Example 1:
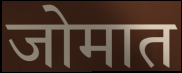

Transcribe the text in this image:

जोमात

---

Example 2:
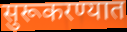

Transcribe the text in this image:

सुरूकरण्यात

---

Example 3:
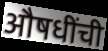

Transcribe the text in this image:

औषधींची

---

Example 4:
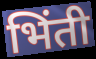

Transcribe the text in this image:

भिंती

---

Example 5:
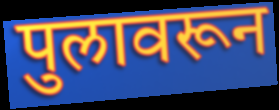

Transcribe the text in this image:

पुलावरून